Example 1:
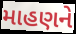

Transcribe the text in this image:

માહણને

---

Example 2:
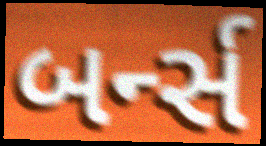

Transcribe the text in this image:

બર્ન્સ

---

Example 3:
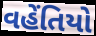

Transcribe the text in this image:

વહેંતિયો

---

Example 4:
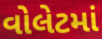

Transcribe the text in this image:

વોલેટમાં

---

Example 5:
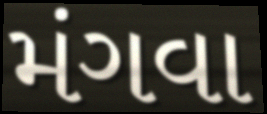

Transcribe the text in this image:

મંગવા